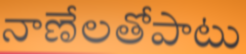
నాణేలతోపాటు